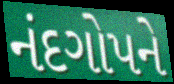
નંદગોપને